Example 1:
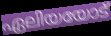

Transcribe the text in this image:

ഏലിയയോട്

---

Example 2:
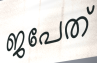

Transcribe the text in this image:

ജപേത്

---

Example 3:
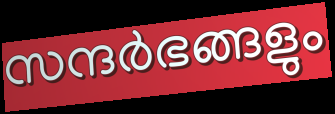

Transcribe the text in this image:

സന്ദർഭങ്ങളും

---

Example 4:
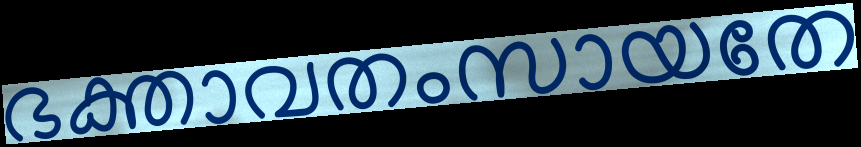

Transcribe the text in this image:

ഭക്താവതംസായതേ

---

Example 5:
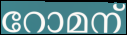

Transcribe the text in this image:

റോമന്